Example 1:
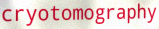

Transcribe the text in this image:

cryotomography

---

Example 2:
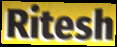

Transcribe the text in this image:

Ritesh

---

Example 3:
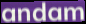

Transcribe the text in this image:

andam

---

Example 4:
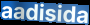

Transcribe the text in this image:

aadisida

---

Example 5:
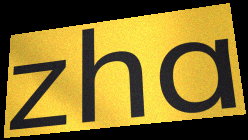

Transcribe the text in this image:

zha